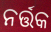
ନର୍ତ୍ତକ